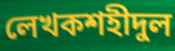
লেখকশহীদুল